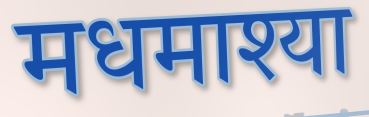
मधमाश्‍या